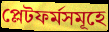
প্লেটফৰ্মসমূহে